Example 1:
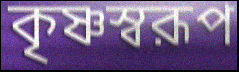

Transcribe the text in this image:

কৃষ্ণস্বরূপ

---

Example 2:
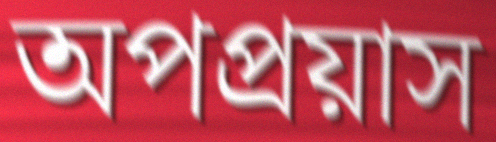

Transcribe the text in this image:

অপপ্রয়াস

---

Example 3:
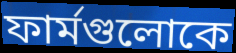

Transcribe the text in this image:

ফার্মগুলোকে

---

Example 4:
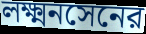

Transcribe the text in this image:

লক্ষ্মনসেনের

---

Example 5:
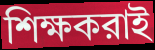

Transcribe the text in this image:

শিক্ষকরাই